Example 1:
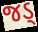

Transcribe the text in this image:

જડ્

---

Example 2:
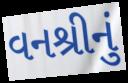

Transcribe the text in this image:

વનશ્રીનું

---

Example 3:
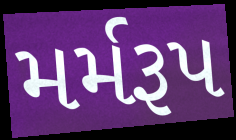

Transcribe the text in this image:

મર્મરૂપ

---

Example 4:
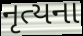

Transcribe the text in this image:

નૃત્યના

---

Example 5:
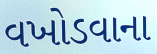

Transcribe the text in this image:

વખોડવાના